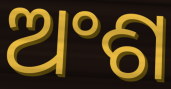
ଅଂଶ